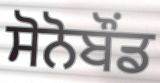
ਸੋਨੋਬੌਂਡ